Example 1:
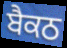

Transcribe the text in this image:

ਬੈਕਠ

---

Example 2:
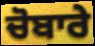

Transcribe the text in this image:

ਚੋਬਾਰੇ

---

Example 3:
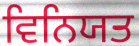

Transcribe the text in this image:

ਵਿਨਿਯਤ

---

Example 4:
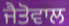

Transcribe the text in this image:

ਜੈਤੋਵਾਲ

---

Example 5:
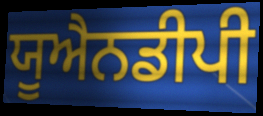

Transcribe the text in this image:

ਯੂਐਨਡੀਪੀ